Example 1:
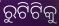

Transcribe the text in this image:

ରୁଟିଟିକୁ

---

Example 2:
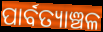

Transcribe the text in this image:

ପାର୍ବତ୍ୟାଞ୍ଚଳ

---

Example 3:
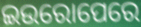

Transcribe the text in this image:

ଇଉରୋପେରେ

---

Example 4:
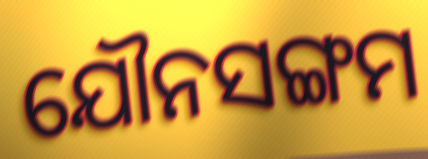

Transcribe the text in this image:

ଯୌନସଙ୍ଗମ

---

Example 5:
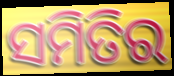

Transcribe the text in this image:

ସମିତିର